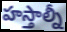
హస్తాల్నీ